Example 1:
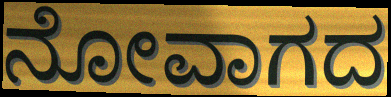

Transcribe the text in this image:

ನೋವಾಗದ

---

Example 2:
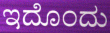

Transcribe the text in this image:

ಇದೊಂದು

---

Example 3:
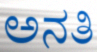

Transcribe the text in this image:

ಅನತಿ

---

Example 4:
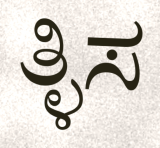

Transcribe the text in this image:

ತ್ಳಿಸ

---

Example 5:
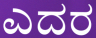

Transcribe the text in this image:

ಎದರ